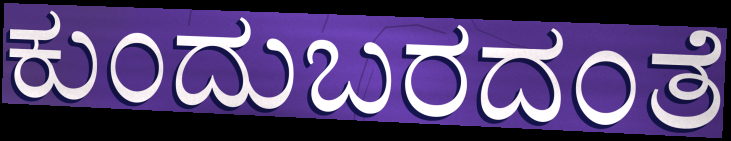
ಕುಂದುಬರದಂತೆ